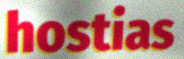
hostias